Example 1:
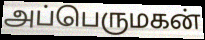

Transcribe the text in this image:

அப்பெருமகன்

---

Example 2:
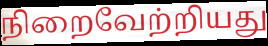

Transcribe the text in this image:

நிறைவேற்றியது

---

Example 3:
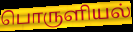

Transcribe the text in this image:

பொருளியல்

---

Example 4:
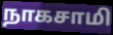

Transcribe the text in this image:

நாகசாமி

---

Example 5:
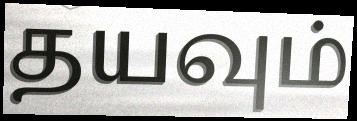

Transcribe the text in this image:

தயவும்